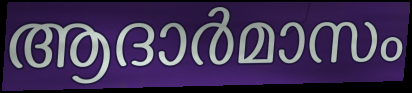
ആദാർമാസം